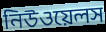
নিউওয়েলস